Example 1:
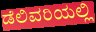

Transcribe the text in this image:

ಡೆಲಿವರಿಯಲ್ಲಿ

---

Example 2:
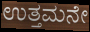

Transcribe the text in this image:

ಉತ್ತಮನೇ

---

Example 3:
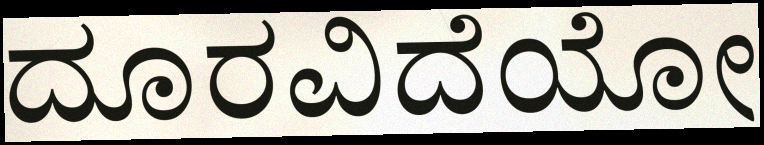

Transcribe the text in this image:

ದೂರವಿದೆಯೋ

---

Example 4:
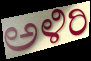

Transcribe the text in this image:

ಅಳಿರಿ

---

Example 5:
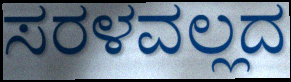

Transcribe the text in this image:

ಸರಳವಲ್ಲದ